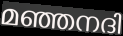
മഞ്ഞനദി